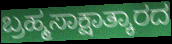
ಬ್ರಹ್ಮಸಾಕ್ಷಾತ್ಕಾರದ